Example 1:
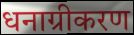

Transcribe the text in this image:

धनाग्रीकरण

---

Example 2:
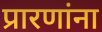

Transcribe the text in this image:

प्रारणांना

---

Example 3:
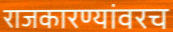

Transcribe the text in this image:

राजकारण्यांवरच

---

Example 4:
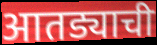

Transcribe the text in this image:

आतड्याची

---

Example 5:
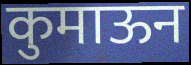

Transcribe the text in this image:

कुमाऊन